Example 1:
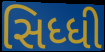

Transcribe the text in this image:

સિધ્ધી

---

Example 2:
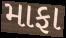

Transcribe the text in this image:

માફા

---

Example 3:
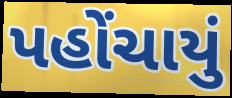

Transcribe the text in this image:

પહોંચાયું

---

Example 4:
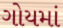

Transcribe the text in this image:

ગોયમાં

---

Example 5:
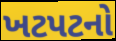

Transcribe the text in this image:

ખટપટનો